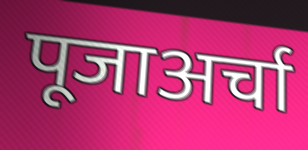
पूजाअर्चा